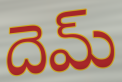
దెమ్